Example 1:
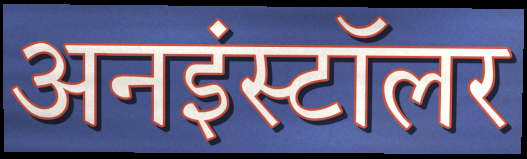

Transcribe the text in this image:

अनइंस्टॉलर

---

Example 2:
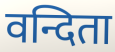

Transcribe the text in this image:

वन्दिता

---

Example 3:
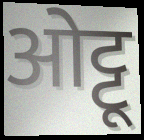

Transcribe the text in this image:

ओट्टू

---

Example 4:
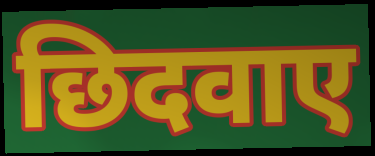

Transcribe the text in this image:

छिदवाए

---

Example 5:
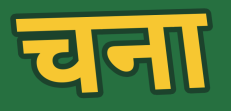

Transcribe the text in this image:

चना